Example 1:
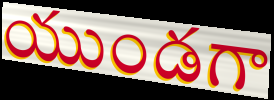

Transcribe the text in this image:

యుండగా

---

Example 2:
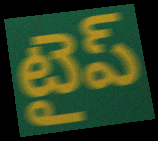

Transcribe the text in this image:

టైప్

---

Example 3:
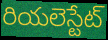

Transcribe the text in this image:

రియలెస్టేట్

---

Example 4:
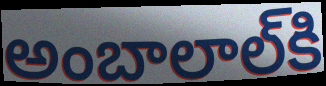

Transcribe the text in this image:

అంబాలాల్‌కి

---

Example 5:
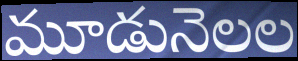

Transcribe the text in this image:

మూడునెలల